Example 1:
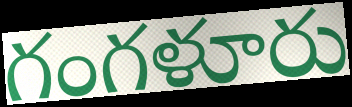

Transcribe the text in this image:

గంగళూరు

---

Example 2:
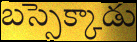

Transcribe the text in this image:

బస్సెక్కాడు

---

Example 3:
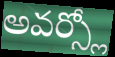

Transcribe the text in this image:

అవర్స్లో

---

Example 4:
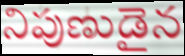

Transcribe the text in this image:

నిపుణుడైన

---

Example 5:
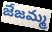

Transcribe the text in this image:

జేజమ్మ